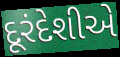
દૂરંદેશીએ